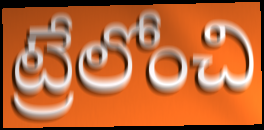
ట్రేలోంచి